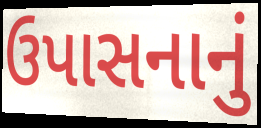
ઉપાસનાનું